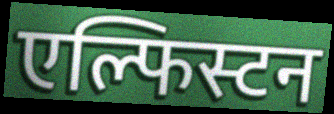
एल्फिस्टन